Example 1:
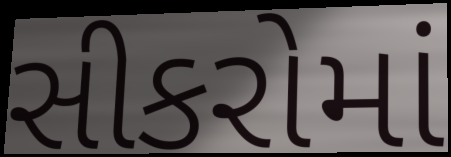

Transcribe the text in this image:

સીકરોમાં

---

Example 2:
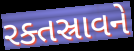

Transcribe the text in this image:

રક્તસ્રાવને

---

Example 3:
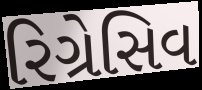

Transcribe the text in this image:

રિગ્રેસિવ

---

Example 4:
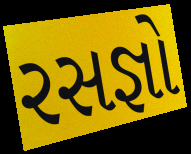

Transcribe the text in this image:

રસજ્ઞો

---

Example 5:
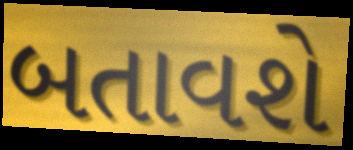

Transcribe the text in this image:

બતાવશે